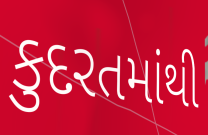
કુદરતમાંથી